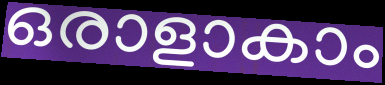
ഒരാളാകാം